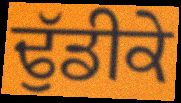
ਢੁੱਡੀਕੇ